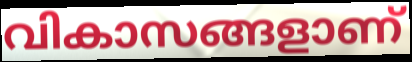
വികാസങ്ങളാണ്